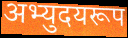
अभ्युदयरूप